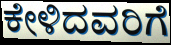
ಕೇಳಿದವರಿಗೆ